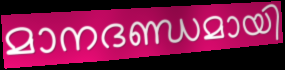
മാനദണ്ഡമായി